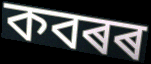
কবৰৰ